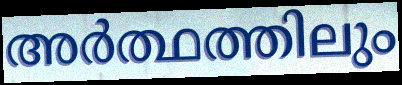
അർത്ഥത്തിലും